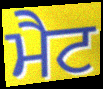
ਮੈਟ